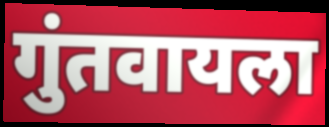
गुंतवायला